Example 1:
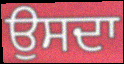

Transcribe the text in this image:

ਉਸਦਾ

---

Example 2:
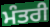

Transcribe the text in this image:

ਮੰਤਰੀ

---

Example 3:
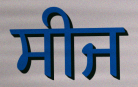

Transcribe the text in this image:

ਸੀਜ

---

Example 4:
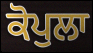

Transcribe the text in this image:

ਕੋਪੁਲਾ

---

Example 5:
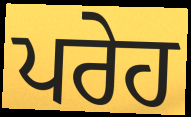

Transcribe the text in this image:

ਪਰੇਹ